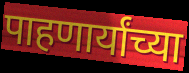
पाहणार्यांच्या